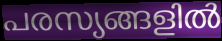
പരസ്യങ്ങളിൽ